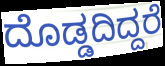
ದೊಡ್ಡದಿದ್ದರೆ